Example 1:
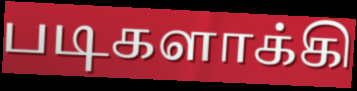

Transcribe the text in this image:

படிகளாக்கி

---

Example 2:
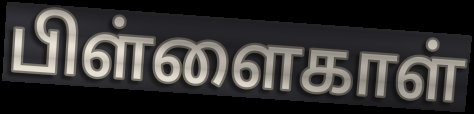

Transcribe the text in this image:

பிள்ளைகாள்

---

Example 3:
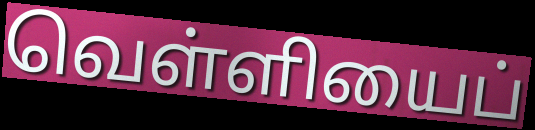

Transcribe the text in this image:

வெள்ளியைப்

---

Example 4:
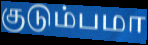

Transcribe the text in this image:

குடும்பமா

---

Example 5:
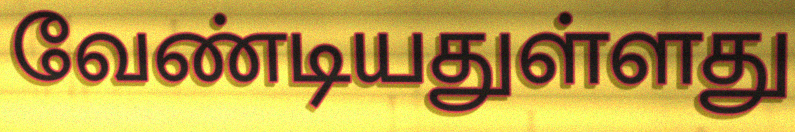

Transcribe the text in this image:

வேண்டியதுள்ளது